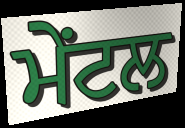
ਮੇਂਟਲ